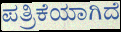
ಪತ್ರಿಕೆಯಾಗಿದೆ